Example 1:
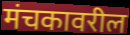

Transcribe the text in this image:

मंचकावरील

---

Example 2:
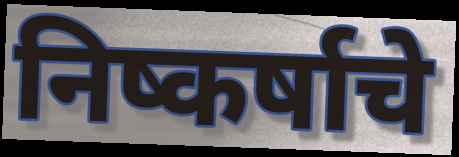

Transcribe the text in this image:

निष्कर्षाचे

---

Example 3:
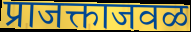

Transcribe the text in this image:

प्राजक्ताजवळ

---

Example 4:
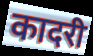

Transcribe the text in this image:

कादरी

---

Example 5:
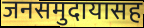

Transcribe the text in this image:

जनसमुदायासह